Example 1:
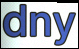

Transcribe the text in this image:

dny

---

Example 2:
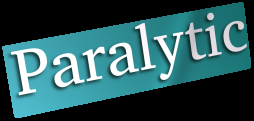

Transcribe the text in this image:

Paralytic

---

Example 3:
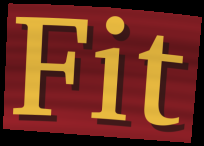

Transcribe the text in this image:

Fit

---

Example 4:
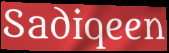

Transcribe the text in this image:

Sadiqeen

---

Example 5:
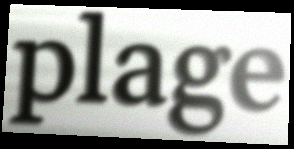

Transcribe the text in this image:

plage